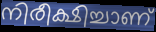
നിരീക്ഷിച്ചാണ്